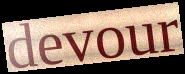
devour